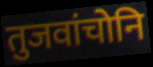
तुजवांचोनि